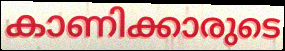
കാണിക്കാരുടെ